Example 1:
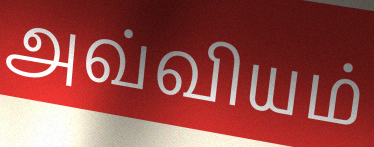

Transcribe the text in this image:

அவ்வியம்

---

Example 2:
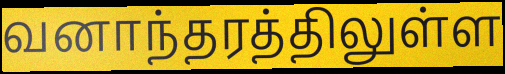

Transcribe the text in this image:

வனாந்தரத்திலுள்ள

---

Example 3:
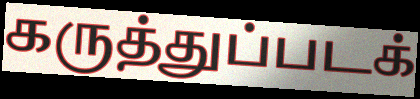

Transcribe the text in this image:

கருத்துப்படக்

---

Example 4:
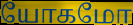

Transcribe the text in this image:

யோகமோ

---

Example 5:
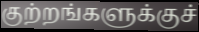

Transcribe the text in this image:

குற்றங்களுக்குச்